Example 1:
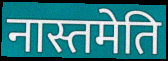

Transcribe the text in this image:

नास्तमेति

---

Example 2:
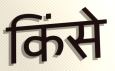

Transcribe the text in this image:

किंसे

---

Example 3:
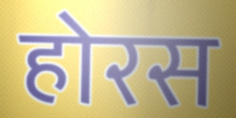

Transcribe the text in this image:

होरस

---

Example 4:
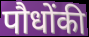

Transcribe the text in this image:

पौधोंकी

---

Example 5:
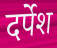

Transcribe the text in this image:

दर्पेश